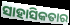
ସାହାସିକତାର